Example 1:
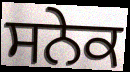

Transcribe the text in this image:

ਸਨੇਕ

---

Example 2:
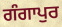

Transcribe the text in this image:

ਗੰਗਾਪੁਰ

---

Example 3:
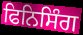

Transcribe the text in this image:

ਫਿਨਿਸਿੰਗ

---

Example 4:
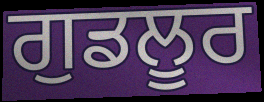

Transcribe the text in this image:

ਗੁਡਲੂਰ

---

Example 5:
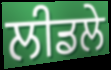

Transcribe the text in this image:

ਲੀਡਲੇ